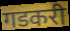
गडकरी